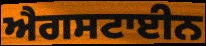
ਐਗਸਟਾਈਨ